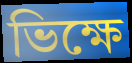
ভিক্ষে